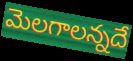
మెలగాలన్నదే